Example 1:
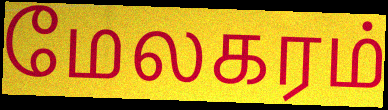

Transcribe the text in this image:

மேலகரம்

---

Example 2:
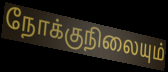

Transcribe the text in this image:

நோக்குநிலையும்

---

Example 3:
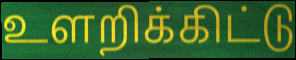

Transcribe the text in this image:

உளறிக்கிட்டு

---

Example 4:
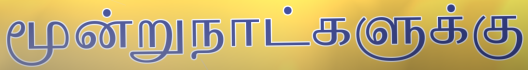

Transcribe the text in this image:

மூன்றுநாட்களுக்கு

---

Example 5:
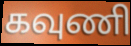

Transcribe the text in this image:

கவுணி